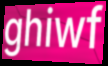
ghiwf